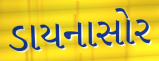
ડાયનાસોર